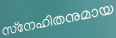
സ്‌നേഹിതനുമായ